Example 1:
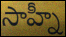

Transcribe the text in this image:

సాహ్నీ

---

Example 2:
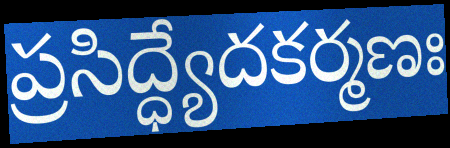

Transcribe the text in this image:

ప్రసిద్ధ్యేదకర్మణః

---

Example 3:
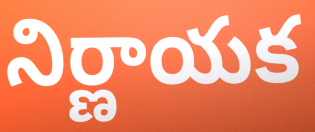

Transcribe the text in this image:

నిర్ణాయక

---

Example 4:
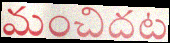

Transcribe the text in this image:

మంచిదట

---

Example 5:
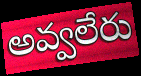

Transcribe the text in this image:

అవ్వలేరు